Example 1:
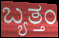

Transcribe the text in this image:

ಬ್ಯತ್ತಂ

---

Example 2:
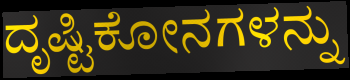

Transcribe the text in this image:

ದೃಷ್ಟಿಕೋನಗಳನ್ನು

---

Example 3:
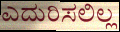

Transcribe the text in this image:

ಎದುರಿಸಲಿಲ್ಲ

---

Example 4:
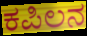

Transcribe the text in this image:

ಕಪಿಲನ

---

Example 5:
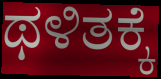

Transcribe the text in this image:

ಥಳಿತಕ್ಕೆ